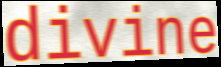
divine